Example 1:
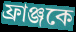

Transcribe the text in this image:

ফ্রাঞ্জকে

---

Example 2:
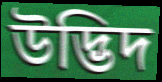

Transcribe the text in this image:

উদ্ভিদ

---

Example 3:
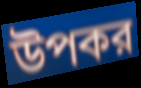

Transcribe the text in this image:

উপকর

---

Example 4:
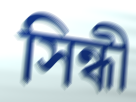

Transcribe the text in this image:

সিন্ধী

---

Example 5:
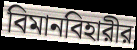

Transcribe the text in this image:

বিমানবিহারীর